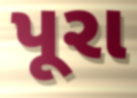
પૂરા